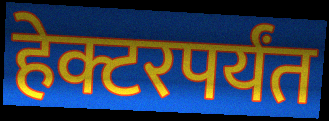
हेक्टरपर्यंत